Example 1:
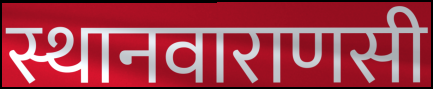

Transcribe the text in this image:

स्थानवाराणसी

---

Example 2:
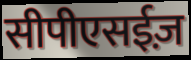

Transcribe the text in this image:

सीपीएसईज़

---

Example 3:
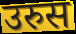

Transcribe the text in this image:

उरुस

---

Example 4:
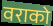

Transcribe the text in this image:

वराको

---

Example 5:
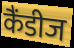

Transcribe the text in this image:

कैंडीज